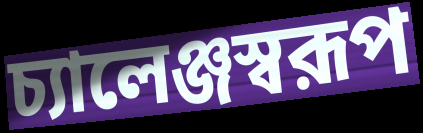
চ্যালেঞ্জস্বরূপ